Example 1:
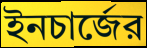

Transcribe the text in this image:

ইনচার্জের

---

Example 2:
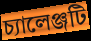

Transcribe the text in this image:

চ্যালেঞ্জটি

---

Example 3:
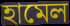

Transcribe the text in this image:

হামেল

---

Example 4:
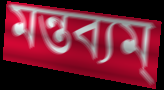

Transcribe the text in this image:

মন্তব্যম্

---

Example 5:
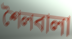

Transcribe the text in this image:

শৈলবালা